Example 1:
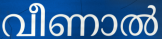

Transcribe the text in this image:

വീണാൽ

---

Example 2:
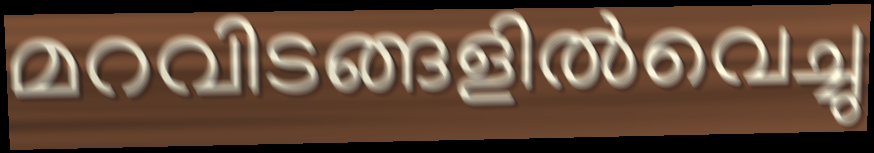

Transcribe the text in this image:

മറവിടങ്ങളിൽവെച്ചു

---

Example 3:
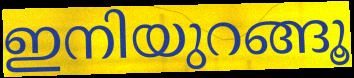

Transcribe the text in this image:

ഇനിയുറങ്ങൂ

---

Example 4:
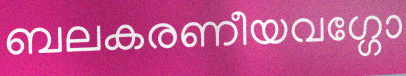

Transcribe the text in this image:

ബലകരണീയവഗ്ഗോ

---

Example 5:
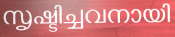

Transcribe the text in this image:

സൃഷ്ടിച്ചവനായി